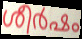
ശീർഷം